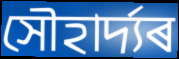
সৌহাৰ্দ্যৰ